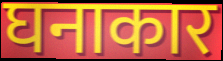
घनाकार